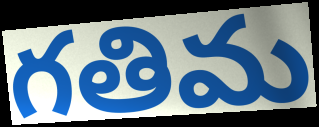
గతిమ